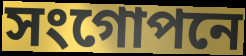
সংগোপনে